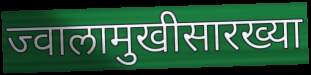
ज्वालामुखीसारख्या